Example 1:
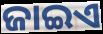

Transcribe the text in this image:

ଜାଇଏ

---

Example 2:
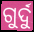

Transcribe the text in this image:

ଗୁର୍ଦୁ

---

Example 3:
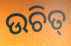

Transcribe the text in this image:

ଉଚିତ୍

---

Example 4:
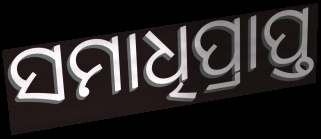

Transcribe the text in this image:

ସମାଧିପ୍ରାପ୍ତ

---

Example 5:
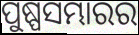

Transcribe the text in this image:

ପୁଷ୍ପସମ୍ଭାରର